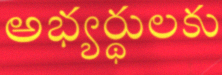
అభ్యర్థులకు